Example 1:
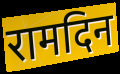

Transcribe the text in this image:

रामदिन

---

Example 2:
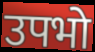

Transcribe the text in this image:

उपभो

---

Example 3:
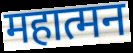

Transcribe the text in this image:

महात्मन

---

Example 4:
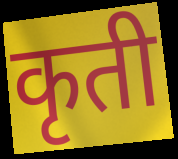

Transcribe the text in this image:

कृती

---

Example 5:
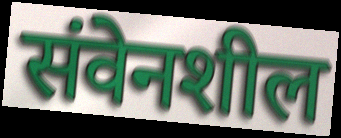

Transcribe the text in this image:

संवेनशील